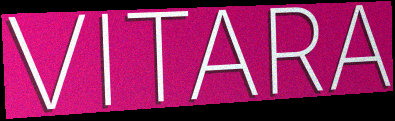
VITARA